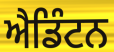
ਐਡਿੰਟਨ